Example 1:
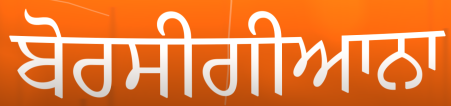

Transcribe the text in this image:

ਬੋਰਸੀਗੀਆਨਾ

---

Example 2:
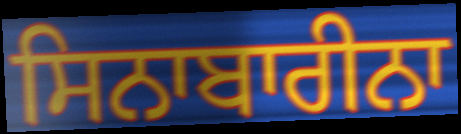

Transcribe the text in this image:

ਸਿਨਾਬਾਰੀਨਾ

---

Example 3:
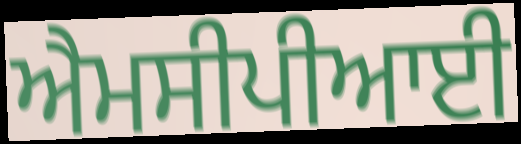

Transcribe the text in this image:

ਐਮਸੀਪੀਆਈ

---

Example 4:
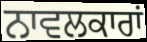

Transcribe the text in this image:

ਨਾਵਲਕਾਰਾਂ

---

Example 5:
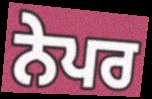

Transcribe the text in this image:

ਨੇਪਰ